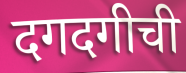
दगदगीची